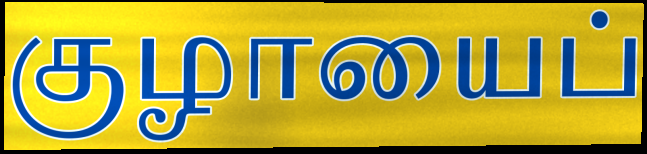
குழாயைப்